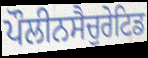
ਪੌਲੀਨਸੈਚੁਰੇਟਿਡ